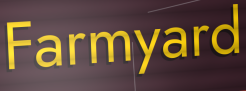
Farmyard